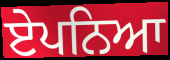
ਏਪਨਿਆ